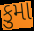
કુમા